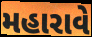
મહારાવે